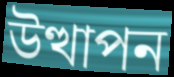
উত্থাপন